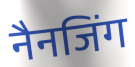
नैनजिंग